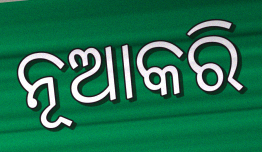
ନୂଆକରି